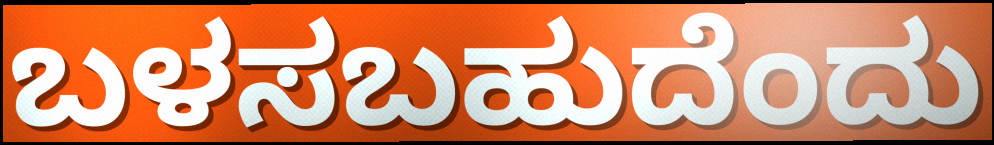
ಬಳಸಬಹುದೆಂದು